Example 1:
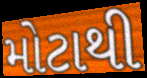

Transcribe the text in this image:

મોટાથી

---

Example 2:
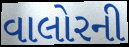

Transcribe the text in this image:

વાલોરની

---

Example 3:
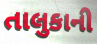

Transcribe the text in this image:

તાલુકાની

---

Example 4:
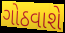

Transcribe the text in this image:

ગોઠવાશે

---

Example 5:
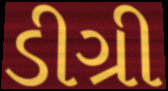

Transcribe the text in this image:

ડીગ્રી